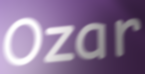
Ozar